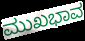
ಮುಖಭಾವ